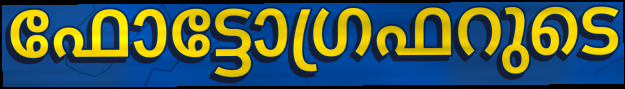
ഫോട്ടോഗ്രഫറുടെ